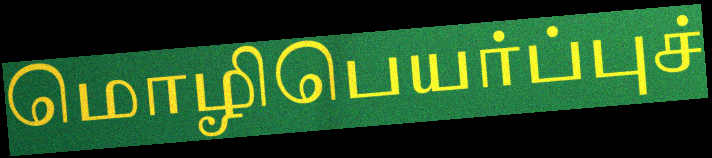
மொழிபெயர்ப்புச்